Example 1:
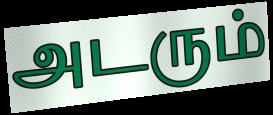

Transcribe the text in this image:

அடரும்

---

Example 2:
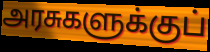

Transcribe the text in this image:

அரசுகளுக்குப்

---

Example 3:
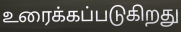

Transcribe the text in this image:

உரைக்கப்படுகிறது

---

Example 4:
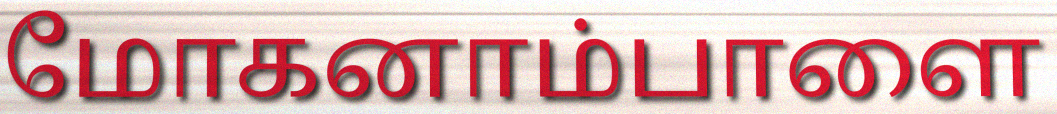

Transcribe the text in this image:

மோகனாம்பாளை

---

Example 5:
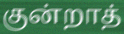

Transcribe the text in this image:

குன்றாத்